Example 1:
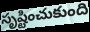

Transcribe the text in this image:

సృష్టించుకుంది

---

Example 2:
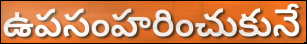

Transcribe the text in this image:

ఉపసంహరించుకునే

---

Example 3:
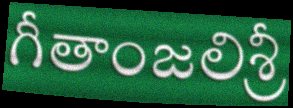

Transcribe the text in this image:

గీతాంజలిశ్రీ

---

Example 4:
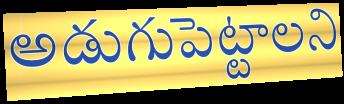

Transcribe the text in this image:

అడుగుపెట్టాలని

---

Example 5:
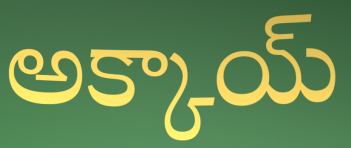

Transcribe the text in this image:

అక్కాయ్